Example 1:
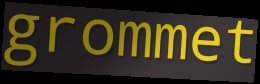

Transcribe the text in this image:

grommet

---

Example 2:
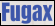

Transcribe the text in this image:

Fugax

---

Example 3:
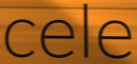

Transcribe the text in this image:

cele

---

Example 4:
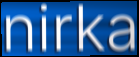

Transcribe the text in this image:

nirka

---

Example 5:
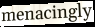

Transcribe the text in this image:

menacingly